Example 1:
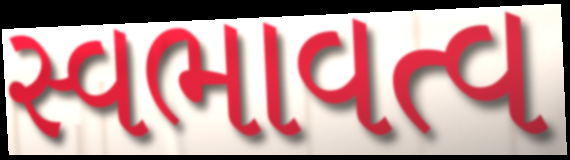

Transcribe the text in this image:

સ્વભાવત્વ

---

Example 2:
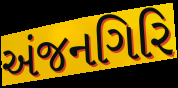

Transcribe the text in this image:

અંજનગિરિ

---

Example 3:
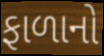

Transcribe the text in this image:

ફાળાનો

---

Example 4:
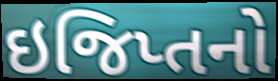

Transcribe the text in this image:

ઇજિપ્તનો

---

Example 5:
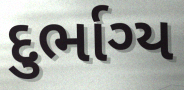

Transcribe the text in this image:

દુર્ભાગ્ય